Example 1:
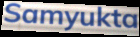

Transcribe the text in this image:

Samyukta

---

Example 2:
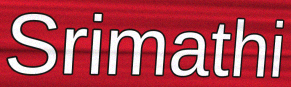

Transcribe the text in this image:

Srimathi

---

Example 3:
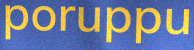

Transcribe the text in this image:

poruppu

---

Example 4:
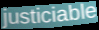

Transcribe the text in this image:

justiciable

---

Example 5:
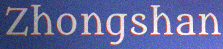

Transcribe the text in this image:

Zhongshan